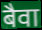
बैवा